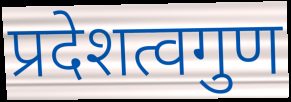
प्रदेशत्वगुण